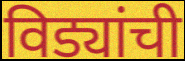
विड्यांची